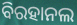
ବିରହାନଲ